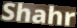
Shahr